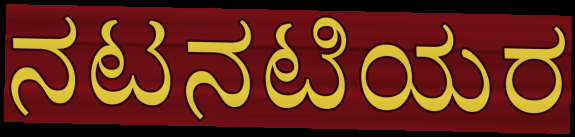
ನಟನಟಿಯರ